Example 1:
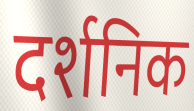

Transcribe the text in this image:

दर्शनिक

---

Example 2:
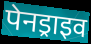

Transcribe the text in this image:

पेनड्राइव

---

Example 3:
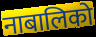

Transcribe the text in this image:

नाबालिको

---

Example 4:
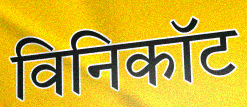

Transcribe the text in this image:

विनिकॉट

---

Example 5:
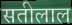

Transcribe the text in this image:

सतीलाल